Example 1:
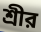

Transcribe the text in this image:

শ্রীর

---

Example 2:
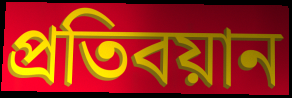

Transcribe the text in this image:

প্রতিবয়ান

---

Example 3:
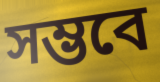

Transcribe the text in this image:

সম্ভবে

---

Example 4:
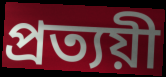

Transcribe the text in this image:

প্রত্যয়ী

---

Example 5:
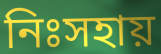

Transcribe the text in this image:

নিঃসহায়